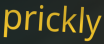
prickly